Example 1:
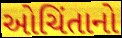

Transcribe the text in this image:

ઓચિંતાનો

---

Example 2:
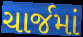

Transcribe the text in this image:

ચાર્જમાં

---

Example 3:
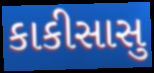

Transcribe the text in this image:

કાકીસાસુ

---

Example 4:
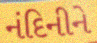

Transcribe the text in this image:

નંદિનીને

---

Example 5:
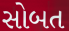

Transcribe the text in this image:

સોબત